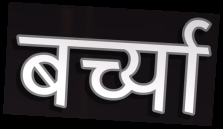
बर्च्या